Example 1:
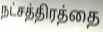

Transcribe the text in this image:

நட்சத்திரத்தை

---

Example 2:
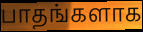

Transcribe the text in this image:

பாதங்களாக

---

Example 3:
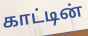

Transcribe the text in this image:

காட்டின்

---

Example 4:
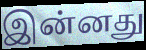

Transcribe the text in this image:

இன்னது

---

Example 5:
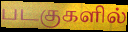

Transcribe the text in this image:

படகுகளில்